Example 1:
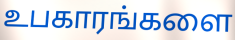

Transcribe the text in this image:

உபகாரங்களை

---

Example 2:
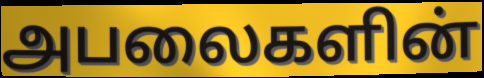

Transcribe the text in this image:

அபலைகளின்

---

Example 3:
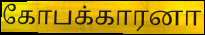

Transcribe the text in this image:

கோபக்காரனா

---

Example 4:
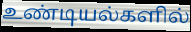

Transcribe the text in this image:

உண்டியல்களில்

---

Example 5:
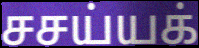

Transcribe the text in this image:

சசய்யக்